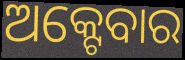
ଅକ୍ଟେବାର